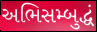
અભિસમ્બુદ્ધં